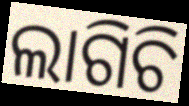
ଲାଗିଚି